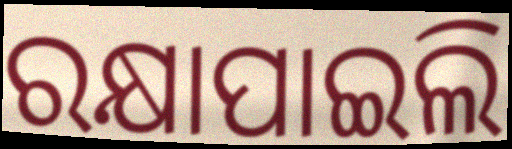
ରକ୍ଷାପାଇଲି